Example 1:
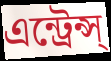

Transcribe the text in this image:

এন্ট্রেন্স্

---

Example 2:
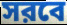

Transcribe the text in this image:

সরবে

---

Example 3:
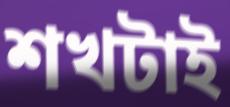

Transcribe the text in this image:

শখটাই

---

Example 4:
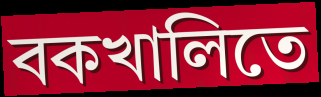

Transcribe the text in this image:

বকখালিতে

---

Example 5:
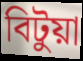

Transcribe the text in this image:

বিটুয়া